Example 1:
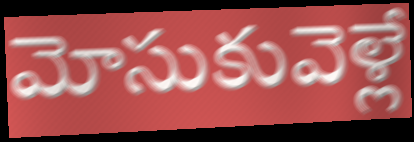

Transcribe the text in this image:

మోసుకువెళ్లే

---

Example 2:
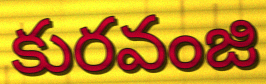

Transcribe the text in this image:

కురవంజి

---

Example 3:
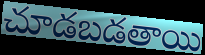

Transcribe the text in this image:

చూడబడతాయి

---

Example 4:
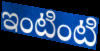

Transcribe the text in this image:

ఇంటింటి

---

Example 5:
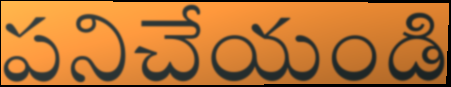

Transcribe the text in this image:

పనిచేయండి